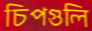
চিপগুলি